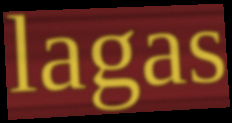
lagas